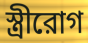
স্ত্রীরোগ